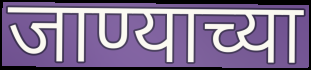
जाण्याच्या